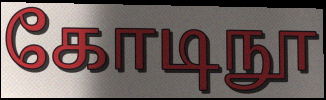
கோடிநூ